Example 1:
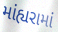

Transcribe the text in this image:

માંહ્યરામાં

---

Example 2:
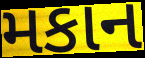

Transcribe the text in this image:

મકાન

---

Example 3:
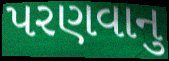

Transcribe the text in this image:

પરણવાનુ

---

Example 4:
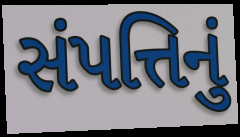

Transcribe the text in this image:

સંપત્તિનું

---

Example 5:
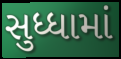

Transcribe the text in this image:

સુધ્ધામાં